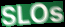
SLOs